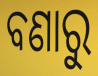
ବଣାରୁ